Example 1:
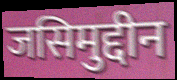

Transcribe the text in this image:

जसिमुद्दीन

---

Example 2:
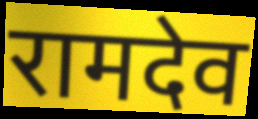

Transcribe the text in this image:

रामदेव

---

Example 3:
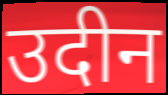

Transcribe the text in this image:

उदीन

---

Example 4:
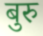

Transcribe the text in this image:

बुरु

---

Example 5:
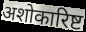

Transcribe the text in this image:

अशोकारिष्ट